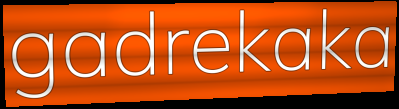
gadrekaka